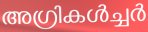
അഗ്രികൾച്ചർ